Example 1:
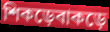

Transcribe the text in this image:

শিকড়েবাকড়ে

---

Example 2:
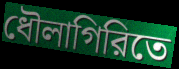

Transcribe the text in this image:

ধৌলাগিরিতে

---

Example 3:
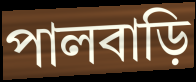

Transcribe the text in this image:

পালবাড়ি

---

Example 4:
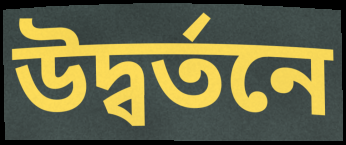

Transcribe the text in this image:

উদ্বর্তনে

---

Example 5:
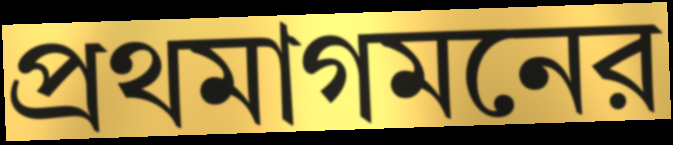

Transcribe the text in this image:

প্রথমাগমনের